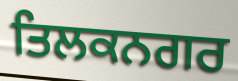
ਤਿਲਕਨਗਰ